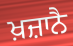
ਖ਼ਜ਼ਾਨੈ